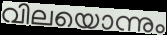
വിലയൊന്നും